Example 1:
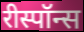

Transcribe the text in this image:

रीस्पॉन्स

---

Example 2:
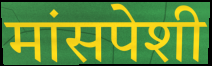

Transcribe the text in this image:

मांसपेशी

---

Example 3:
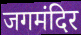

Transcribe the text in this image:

जगमंदिर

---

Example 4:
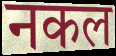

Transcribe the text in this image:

नकल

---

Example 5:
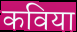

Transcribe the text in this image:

कविया